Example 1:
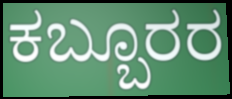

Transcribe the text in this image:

ಕಬ್ಬೂರರ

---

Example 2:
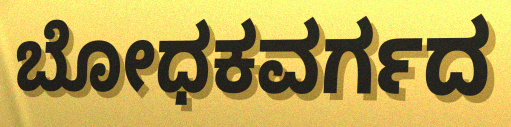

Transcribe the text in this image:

ಬೋಧಕವರ್ಗದ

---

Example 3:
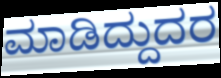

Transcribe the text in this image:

ಮಾಡಿದ್ದುದರ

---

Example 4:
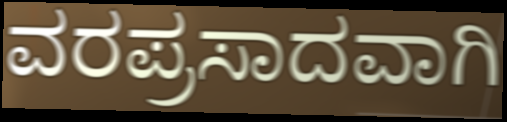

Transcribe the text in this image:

ವರಪ್ರಸಾದವಾಗಿ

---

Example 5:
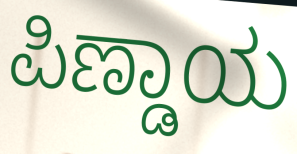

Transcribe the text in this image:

ಪಿಣ್ಡಾಯ